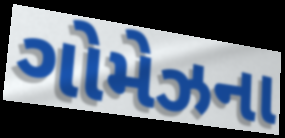
ગોમેઝના